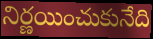
నిర్ణయించుకునేది